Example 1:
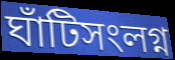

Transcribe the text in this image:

ঘাঁটিসংলগ্ন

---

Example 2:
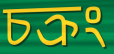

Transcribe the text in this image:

চক্রং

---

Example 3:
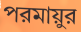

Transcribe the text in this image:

পরমায়ুর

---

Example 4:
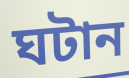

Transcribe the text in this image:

ঘটান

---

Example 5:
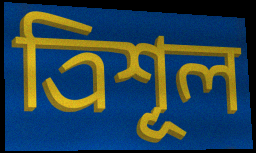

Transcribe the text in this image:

ত্রিশূল